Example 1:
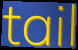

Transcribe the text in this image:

tail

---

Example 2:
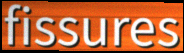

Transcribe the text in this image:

fissures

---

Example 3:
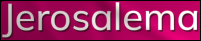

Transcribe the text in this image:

Jerosalema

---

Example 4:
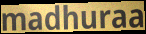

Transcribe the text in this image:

madhuraa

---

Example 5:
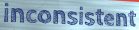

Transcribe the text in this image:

inconsistent